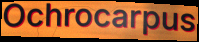
Ochrocarpus